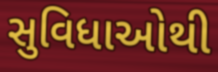
સુવિધાઓથી